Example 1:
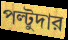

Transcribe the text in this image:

পল্টুদার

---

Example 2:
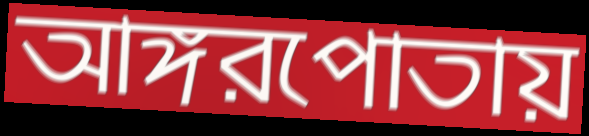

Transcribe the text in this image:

আঙ্গরপোতায়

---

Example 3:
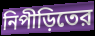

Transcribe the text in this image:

নিপীড়িতের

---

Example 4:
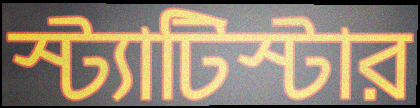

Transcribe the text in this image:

স্ট্যাটিস্টার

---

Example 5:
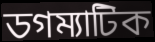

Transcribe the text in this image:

ডগম্যাটিক